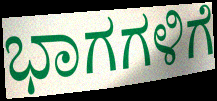
ಭಾಗಗಳಿಗೆ